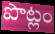
పొట్లం